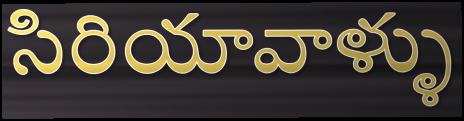
సిరియావాళ్ళు